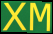
XM